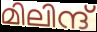
മിലിന്ദ്